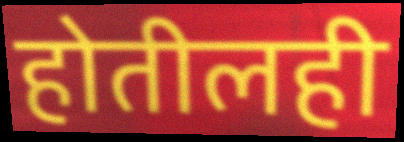
होतीलही